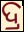
ଦ୍ର